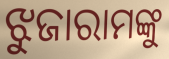
ଝୁଜାରାମଙ୍କୁ